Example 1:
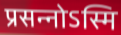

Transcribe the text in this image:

प्रसन्नोऽस्मि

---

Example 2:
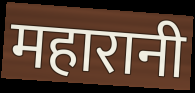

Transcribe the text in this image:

महारानी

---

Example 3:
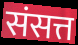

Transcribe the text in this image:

संसत्त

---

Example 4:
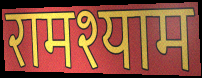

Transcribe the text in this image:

रामश्याम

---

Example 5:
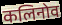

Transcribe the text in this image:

कलिनोव